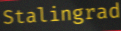
Stalingrad